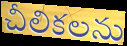
చీలికలను